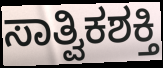
ಸಾತ್ವಿಕಶಕ್ತಿ